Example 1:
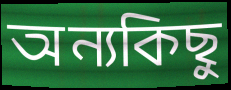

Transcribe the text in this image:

অন্যকিছু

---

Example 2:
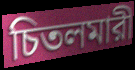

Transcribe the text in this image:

চিতলমারী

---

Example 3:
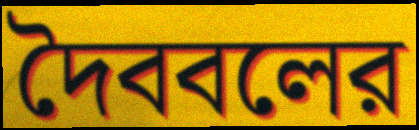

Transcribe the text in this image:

দৈববলের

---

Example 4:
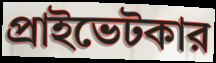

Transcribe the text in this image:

প্রাইভেটকার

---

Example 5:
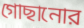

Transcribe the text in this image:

গোছানোর